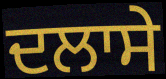
ਦਲਾਸੇ